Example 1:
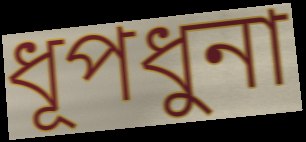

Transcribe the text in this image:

ধূপধুনা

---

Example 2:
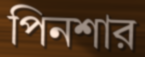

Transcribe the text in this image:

পিনশার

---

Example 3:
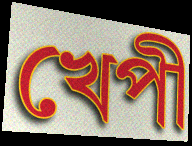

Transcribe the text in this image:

খেপী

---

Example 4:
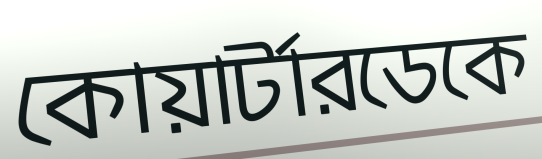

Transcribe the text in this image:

কোয়ার্টারডেকে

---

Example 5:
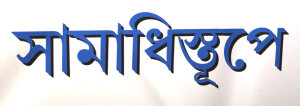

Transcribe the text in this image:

সামাধিস্তূপে